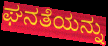
ಘನತೆಯನ್ನು